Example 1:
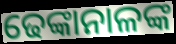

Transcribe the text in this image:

ଢେଙ୍କାନାଳଙ୍କ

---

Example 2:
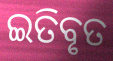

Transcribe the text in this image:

ଇତିବୃତ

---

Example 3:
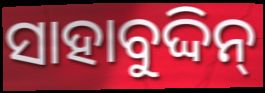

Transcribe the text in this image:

ସାହାବୁଦ୍ଦିନ୍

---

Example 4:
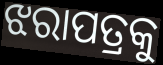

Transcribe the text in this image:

ଝରାପତ୍ରକୁ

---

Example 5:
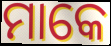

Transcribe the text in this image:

ମାକେ